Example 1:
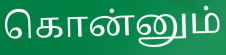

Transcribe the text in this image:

கொன்னும்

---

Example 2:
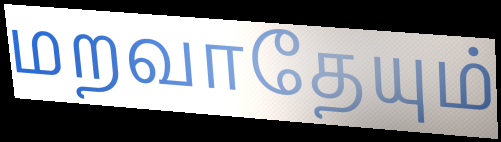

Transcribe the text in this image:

மறவாதேயும்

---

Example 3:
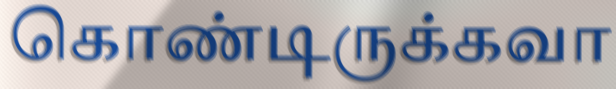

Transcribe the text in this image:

கொண்டிருக்கவா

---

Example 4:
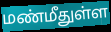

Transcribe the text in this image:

மண்மீதுள்ள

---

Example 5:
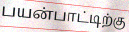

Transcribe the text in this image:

பயன்பாட்டிற்கு